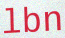
lbn